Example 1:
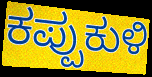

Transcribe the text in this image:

ಕಪ್ಪುಕುಳಿ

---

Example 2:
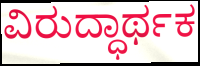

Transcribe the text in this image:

ವಿರುದ್ಧಾರ್ಥಕ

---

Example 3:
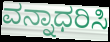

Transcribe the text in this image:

ವನ್ನಾಧರಿಸಿ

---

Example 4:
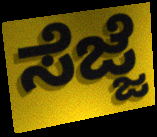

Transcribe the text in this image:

ಸೆಜ್ಜೆ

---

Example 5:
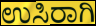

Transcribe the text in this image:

ಉಸಿರಾಗಿ